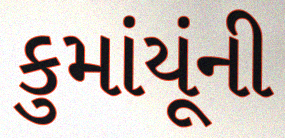
કુમાંયૂંની